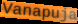
Vanapuja